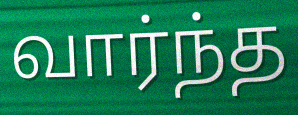
வார்ந்த